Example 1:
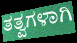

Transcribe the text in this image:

ತತ್ವಗಳಾಗಿ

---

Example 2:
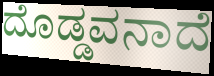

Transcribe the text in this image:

ದೊಡ್ಡವನಾದೆ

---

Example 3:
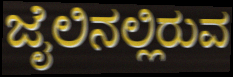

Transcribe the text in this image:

ಜೈಲಿನಲ್ಲಿರುವ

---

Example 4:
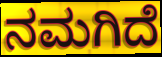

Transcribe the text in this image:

ನಮಗಿದೆ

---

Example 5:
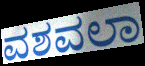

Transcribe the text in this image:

ವಶವಲಾ